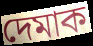
দেমাক